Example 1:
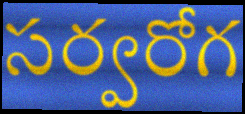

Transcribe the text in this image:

సర్వరోగ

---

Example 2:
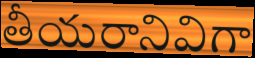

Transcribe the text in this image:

తీయరానివిగా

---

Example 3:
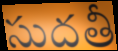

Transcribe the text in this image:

సుదతీ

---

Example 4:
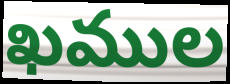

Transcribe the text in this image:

ఖముల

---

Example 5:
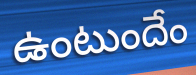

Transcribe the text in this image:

ఉంటుందేం